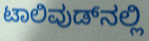
ಟಾಲಿವುಡ್‌ನಲ್ಲಿ